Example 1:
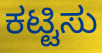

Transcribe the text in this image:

ಕಟ್ಟಿಸು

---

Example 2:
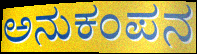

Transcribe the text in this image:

ಅನುಕಂಪನ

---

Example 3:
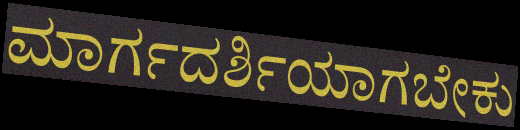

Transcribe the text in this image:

ಮಾರ್ಗದರ್ಶಿಯಾಗಬೇಕು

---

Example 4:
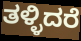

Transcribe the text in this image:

ತಳ್ಳಿದರೆ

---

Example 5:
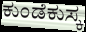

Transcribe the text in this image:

ಕುಂಡೆಕುಸ್ಕ